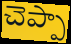
చెప్పా